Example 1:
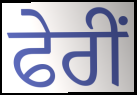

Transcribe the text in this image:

ਫੇਰੀਂ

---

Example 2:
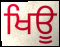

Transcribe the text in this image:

ਖਿਊ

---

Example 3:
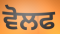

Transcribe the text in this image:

ਵੋਲਫ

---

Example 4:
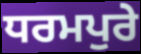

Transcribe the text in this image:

ਧਰਮਪੁਰੇ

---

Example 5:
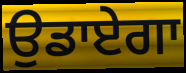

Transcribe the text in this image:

ਉਡਾਏਗਾ